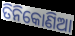
ତିନିକୋଣିଆ